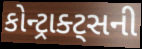
કોન્ટ્રાક્ટ્સની